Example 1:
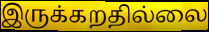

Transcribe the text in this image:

இருக்கறதில்லை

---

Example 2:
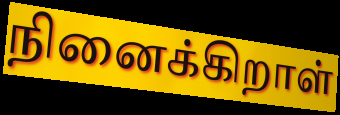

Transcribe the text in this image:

நினைக்கிறாள்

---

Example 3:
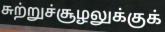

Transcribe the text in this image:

சுற்றுச்சூழலுக்குக்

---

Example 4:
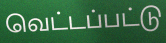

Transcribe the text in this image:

வெட்டப்பட்டு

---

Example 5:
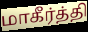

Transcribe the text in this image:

மாகீர்த்தி